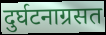
दुर्घटनाग्रसत